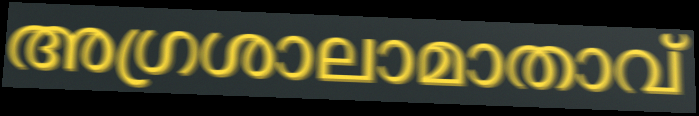
അഗ്രശാലാമാതാവ്